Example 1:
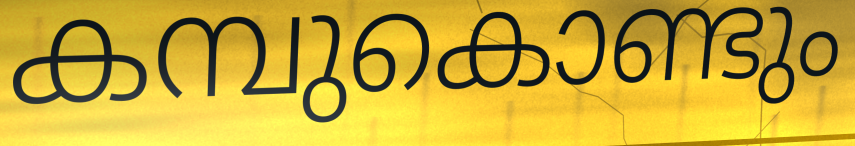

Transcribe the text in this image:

കമ്പുകൊണ്ടും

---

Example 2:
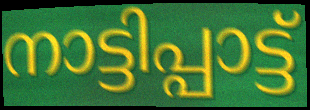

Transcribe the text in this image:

നാട്ടിപ്പാട്ട്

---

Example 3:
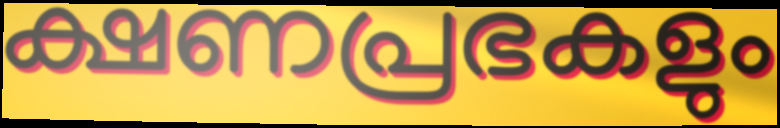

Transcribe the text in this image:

ക്ഷണപ്രഭകളും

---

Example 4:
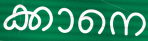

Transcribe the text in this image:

ക്കാനെ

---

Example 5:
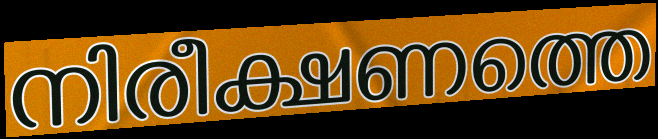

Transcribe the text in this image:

നിരീക്ഷണത്തെ